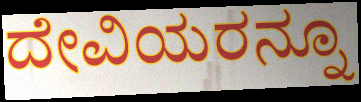
ದೇವಿಯರನ್ನೂ